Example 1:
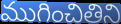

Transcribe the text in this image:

ముగించితిని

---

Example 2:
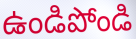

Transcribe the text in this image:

ఉండిపోండి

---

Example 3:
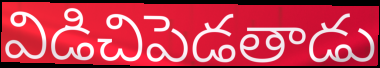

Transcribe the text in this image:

విడిచిపెడతాడు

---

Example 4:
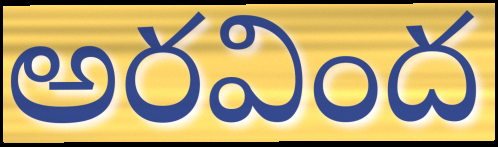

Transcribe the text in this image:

అరవింద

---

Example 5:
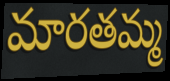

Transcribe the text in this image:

మారతమ్మ